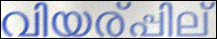
വിയര്പ്പില്